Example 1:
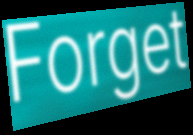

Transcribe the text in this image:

Forget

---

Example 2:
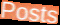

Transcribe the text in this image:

Posts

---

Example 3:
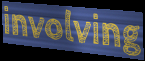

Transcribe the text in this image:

involving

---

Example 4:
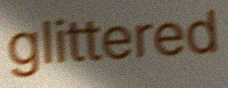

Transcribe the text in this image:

glittered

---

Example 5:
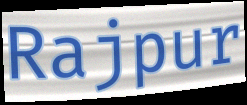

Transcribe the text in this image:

Rajpur